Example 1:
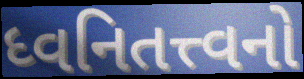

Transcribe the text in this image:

ધ્વનિતત્ત્વનો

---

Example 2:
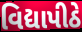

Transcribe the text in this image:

વિદ્યાપીઠે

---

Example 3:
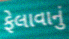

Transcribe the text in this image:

ફેલાવાનું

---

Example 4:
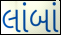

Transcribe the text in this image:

લાંબાં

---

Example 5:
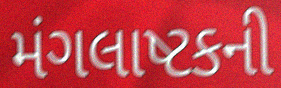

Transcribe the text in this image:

મંગલાષ્ટકની